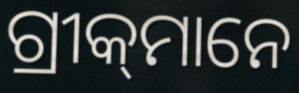
ଗ୍ରୀକ୍‌ମାନେ